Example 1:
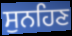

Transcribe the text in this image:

ਸੁਨਹਿਣ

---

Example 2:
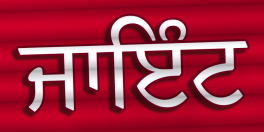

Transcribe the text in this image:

ਜਾਇੰਟ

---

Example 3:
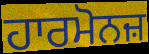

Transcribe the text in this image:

ਹਾਰਮੋਨਜ਼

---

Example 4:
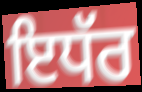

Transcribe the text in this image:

ਇਧੱਰ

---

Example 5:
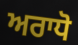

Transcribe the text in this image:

ਅਰਾਧੋ